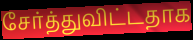
சேர்த்துவிட்டதாக